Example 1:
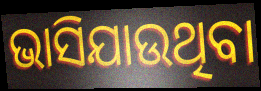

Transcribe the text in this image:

ଭାସିଯାଉଥିବା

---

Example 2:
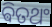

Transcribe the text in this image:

ଵିତଥଂ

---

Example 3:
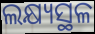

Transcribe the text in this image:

ଲକ୍ଷ୍ୟସ୍ଥଳ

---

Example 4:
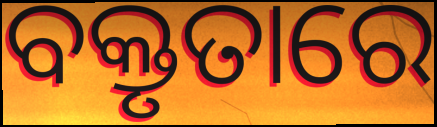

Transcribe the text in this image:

ବକ୍ତୃତାରେ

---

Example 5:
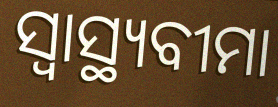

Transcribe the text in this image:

ସ୍ଵାସ୍ଥ୍ୟବୀମା